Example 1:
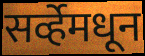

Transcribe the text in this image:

सर्व्हेमधून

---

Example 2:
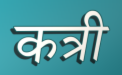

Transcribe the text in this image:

कत्री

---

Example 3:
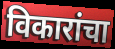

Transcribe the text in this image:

विकारांचा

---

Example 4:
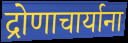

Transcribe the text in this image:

द्रोणाचार्याना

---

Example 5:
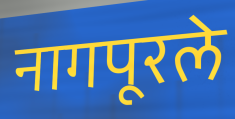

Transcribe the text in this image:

नागपूरले